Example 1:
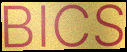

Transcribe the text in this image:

BICS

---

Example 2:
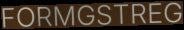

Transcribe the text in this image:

FORMGSTREG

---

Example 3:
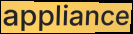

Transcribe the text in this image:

appliance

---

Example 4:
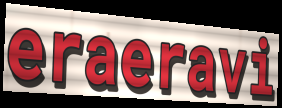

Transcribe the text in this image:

eraeravi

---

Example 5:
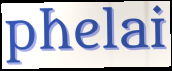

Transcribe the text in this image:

phelai